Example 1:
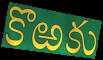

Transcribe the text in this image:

కొఱకు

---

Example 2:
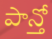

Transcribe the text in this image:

పాన్తో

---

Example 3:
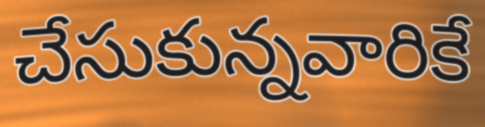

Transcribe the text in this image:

చేసుకున్నవారికే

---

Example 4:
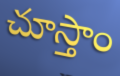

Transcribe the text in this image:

చూస్తాం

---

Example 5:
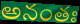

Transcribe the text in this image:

అనంతః